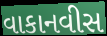
વાકાનવીસ